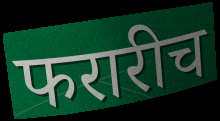
फरारीच